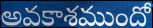
అవకాశముందో